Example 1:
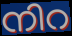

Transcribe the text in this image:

നിറ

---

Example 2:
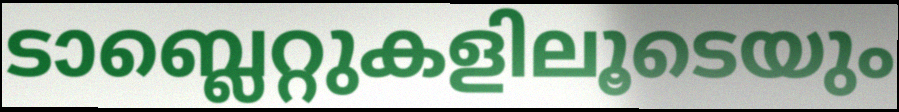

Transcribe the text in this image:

ടാബ്ലെറ്റുകളിലൂടെയും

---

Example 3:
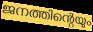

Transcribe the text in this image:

ജനത്തിന്റെയും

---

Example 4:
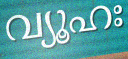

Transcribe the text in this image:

വ്യൂഹഃ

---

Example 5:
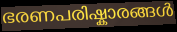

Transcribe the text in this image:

ഭരണപരിഷ്കാരങ്ങൾ